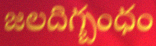
జలదిగ్బంధం